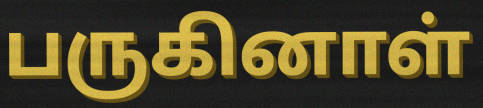
பருகினாள்